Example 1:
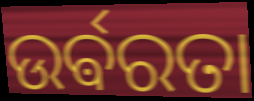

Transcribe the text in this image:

ଉର୍ଵରତା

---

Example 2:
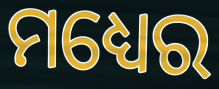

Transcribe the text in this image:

ମଧ୍ୟେର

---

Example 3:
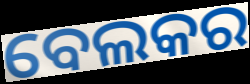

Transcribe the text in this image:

ବେଲକର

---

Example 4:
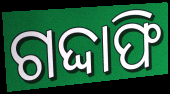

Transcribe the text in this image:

ଗଦ୍ଦାଫି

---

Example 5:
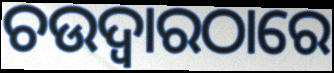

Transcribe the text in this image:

ଚଉଦ୍ଵାରଠାରେ